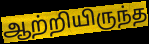
ஆற்றியிருந்த